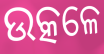
ଉତ୍କଳେ